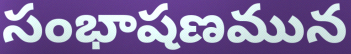
సంభాషణమున